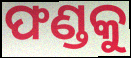
ଫଣ୍ଡକୁ